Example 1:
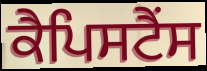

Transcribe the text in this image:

ਕੈਪਿਸਟੈਂਸ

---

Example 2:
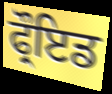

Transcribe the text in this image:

ਫ੍ਰੌਇਡ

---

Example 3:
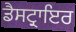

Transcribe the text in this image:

ਡੈਸਟ੍ਰਾਇਰ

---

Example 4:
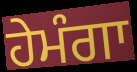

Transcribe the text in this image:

ਹੇਮੰਗਾ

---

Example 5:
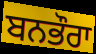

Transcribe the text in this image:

ਬਨਭੌਰਾ